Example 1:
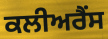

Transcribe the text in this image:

ਕਲੀਅਰੈਂਸ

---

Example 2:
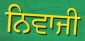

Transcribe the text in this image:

ਨਿਵਾਜੀ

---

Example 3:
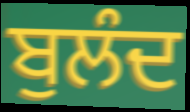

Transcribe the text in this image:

ਬੁਲੰਦ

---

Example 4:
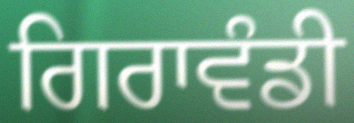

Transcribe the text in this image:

ਗਿਰਾਵੰਡੀ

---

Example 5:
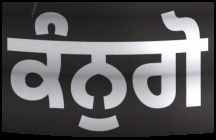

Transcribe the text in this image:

ਕੰਨੁਗੋ